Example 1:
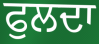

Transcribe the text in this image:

ਫੁਲਦਾ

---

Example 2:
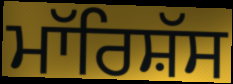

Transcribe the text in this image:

ਮਾੱਰਿਸ਼ੱਸ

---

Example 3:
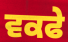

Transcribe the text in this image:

ਵਕਫੇ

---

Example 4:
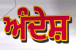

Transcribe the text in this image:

ਅੰਦੇਸ਼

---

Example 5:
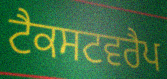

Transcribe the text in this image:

ਟੈਕਸਟਵਰੈਪ